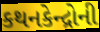
કથનકેન્દ્રોની